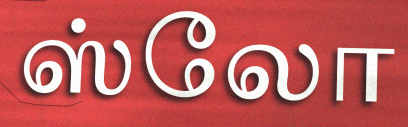
ஸ்லோ